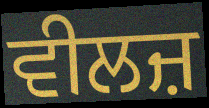
ਵੀਲਜ਼